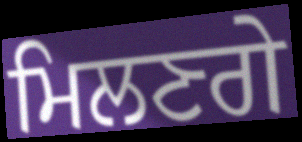
ਮਿਲਣਗੇ